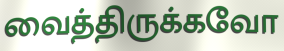
வைத்திருக்கவோ